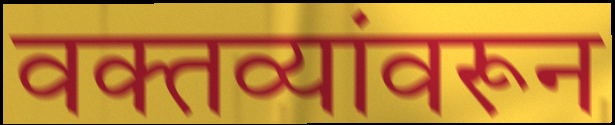
वक्तव्यांवरून